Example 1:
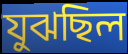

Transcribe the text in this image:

যুঝছিল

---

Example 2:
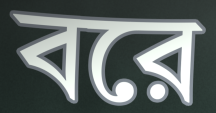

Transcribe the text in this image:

বরে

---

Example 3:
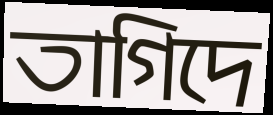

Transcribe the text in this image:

তাগিদে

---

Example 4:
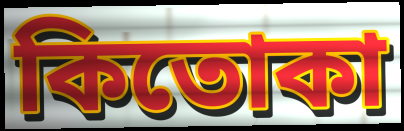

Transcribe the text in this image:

কিতোকা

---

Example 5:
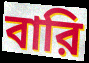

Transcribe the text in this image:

বারি